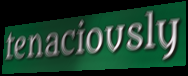
tenaciously